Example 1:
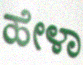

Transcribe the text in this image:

ಹೇಳಾ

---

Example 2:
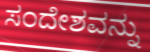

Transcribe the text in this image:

ಸಂದೇಶವನ್ನು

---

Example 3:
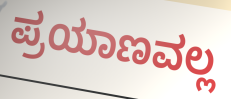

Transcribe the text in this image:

ಪ್ರಯಾಣವಲ್ಲ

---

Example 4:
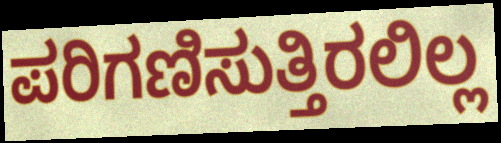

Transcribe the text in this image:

ಪರಿಗಣಿಸುತ್ತಿರಲಿಲ್ಲ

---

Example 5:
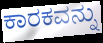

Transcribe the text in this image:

ಕಾರಕವನ್ನು